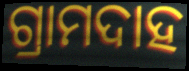
ଗ୍ରାମଦାହ